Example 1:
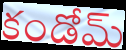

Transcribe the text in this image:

కండోమ్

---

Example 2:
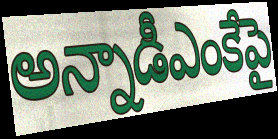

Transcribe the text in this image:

అన్నాడీఎంకేపై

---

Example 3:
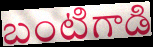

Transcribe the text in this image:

బంటిగాడి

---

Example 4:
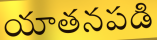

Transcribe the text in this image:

యాతనపడి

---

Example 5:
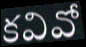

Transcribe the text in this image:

కవివో